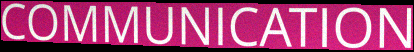
COMMUNICATION